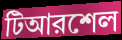
টিআরশেল